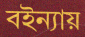
বইন্যায়